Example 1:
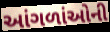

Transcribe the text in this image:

આંગળાંઓની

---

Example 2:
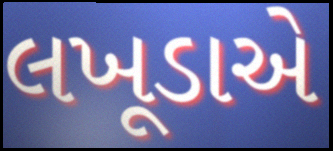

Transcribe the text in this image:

લખૂડાએ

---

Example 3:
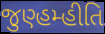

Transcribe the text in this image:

જુણ્હમ્હીતિ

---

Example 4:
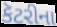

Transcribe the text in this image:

કૅટરીના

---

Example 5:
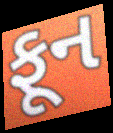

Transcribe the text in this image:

ફૂન